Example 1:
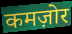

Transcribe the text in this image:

कमज़ोर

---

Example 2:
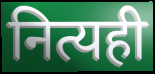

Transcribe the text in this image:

नित्यही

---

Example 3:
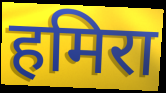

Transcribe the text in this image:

हमिरा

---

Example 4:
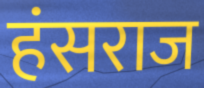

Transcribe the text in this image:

हंसराज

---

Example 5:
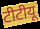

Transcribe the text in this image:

टीटीयू